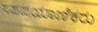
ಸಹಪ್ರಯಾಣಿಕರು